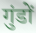
गुंडों